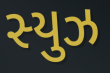
સ્યુઝ